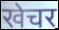
खेचर